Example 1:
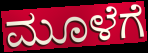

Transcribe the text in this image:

ಮೂಳೆಗೆ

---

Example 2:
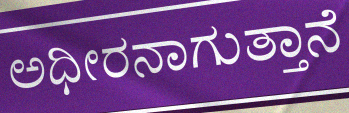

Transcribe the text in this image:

ಅಧೀರನಾಗುತ್ತಾನೆ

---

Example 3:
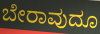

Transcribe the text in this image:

ಬೇರಾವುದೂ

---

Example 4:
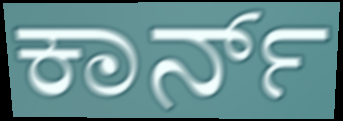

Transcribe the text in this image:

ಕಾರ್ನ್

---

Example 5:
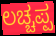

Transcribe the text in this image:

ಲಚ್ಚಪ್ಪ